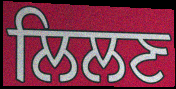
ਲਿਲਣ